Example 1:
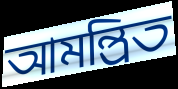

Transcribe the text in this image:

আমন্ত্রিত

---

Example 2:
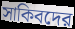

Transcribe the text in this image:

সাকিবদের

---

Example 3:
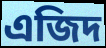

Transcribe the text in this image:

এজিদ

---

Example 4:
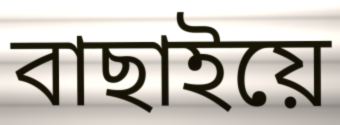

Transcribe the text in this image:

বাছাইয়ে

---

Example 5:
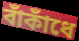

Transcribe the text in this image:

বাঁকাঁধে